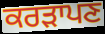
ਕਰੜਾਪਣ